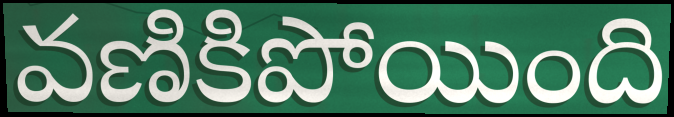
వణికిపోయింది